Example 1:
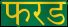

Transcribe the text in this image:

फरड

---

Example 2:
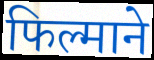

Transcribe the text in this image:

फिल्माने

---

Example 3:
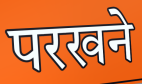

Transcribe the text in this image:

परखने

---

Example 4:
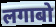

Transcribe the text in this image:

लगाबो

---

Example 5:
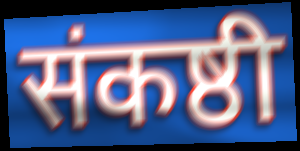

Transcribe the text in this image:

संकष्ठी